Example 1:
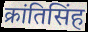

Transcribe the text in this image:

क्रांतिसिंह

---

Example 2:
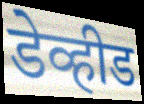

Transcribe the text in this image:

डेव्हीड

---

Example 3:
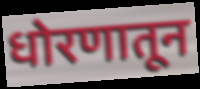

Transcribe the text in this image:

धोरणातून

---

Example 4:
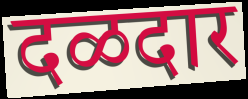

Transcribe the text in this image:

दळदार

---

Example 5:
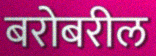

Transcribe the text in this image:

बरोबरील